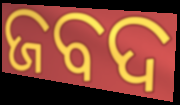
ଜବଦ